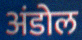
अंडोल